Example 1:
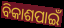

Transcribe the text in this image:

ବିକାଶପାଇଁ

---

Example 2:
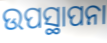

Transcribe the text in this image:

ଉପସ୍ଥାପନା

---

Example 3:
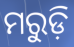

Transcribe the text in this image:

ମରୁଡ଼ି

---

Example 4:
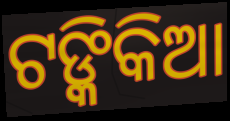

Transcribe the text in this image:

ଟଙ୍କିକିଆ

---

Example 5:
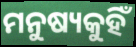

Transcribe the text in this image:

ମନୁଷ୍ୟକୁହିଁ